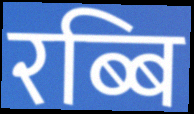
रब्बि